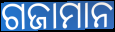
ଗଜାମାନ